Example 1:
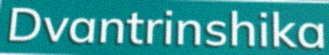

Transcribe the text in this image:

Dvantrinshika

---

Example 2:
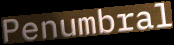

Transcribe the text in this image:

Penumbral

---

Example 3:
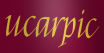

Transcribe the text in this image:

ucarpic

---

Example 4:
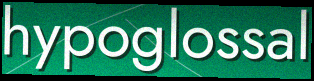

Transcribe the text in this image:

hypoglossal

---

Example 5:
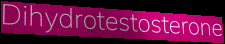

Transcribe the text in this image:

Dihydrotestosterone